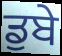
ਡੁਬੇ